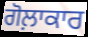
ਗੋਲ਼ਾਕਾਰ